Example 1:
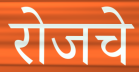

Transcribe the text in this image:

रोजचे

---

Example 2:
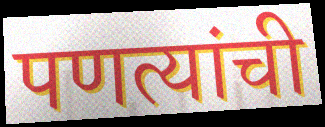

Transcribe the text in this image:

पणत्यांची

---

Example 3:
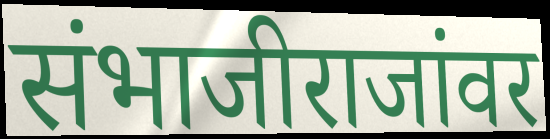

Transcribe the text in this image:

संभाजीराजांवर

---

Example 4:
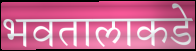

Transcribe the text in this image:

भवतालाकडे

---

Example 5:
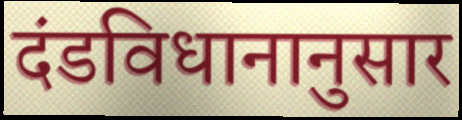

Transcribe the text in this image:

दंडविधानानुसार